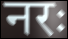
नरः